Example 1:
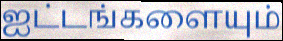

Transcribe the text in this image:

ஐட்டங்களையும்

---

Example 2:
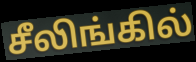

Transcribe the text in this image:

சீலிங்கில்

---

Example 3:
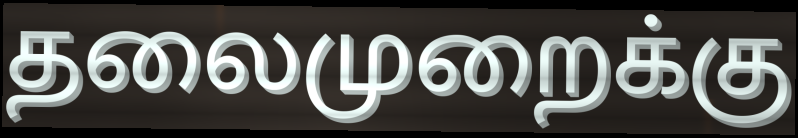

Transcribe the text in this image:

தலைமுறைக்கு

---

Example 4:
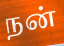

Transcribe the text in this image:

நன்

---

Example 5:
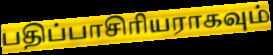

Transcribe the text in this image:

பதிப்பாசிரியராகவும்